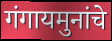
गंगायमुनांचे